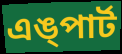
এঙ্পার্ট